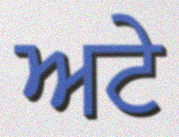
ਅਟੇ